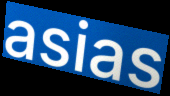
asias